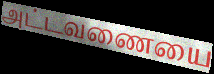
அட்டவணையை